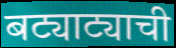
बट्याट्याची